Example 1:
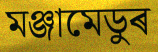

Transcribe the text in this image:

মঞ্জামেডুৰ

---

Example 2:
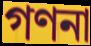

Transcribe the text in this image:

গণনা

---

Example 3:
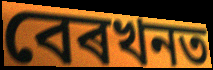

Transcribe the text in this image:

বেৰখনত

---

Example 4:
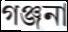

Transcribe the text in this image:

গঞ্জনা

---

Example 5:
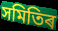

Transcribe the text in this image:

সমিতিৰ